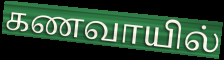
கணவாயில்